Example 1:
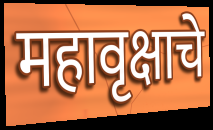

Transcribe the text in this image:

महावृक्षाचे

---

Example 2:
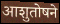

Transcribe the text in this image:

आशुतोषने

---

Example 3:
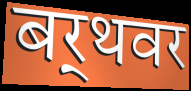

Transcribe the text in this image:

बर्थवर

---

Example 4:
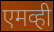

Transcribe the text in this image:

एमव्ही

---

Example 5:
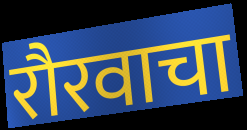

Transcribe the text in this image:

रौरवाचा